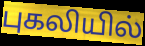
புகலியில்